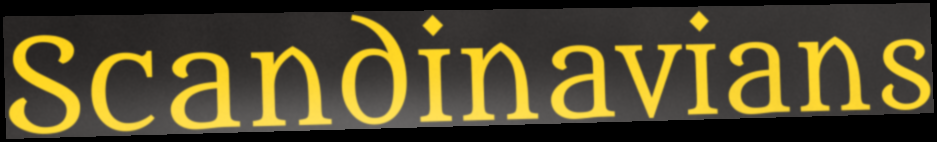
Scandinavians